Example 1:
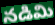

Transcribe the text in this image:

నడిమి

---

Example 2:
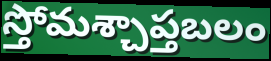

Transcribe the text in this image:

స్తోమశ్చాప్తబలం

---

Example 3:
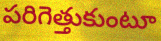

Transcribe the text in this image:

పరిగెత్తుకుంటూ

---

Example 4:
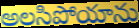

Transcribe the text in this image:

అలసిపోయాను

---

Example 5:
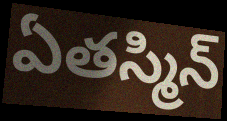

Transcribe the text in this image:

ఏతస్మిన్